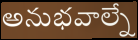
అనుభవాల్నే